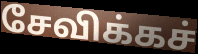
சேவிக்கச்